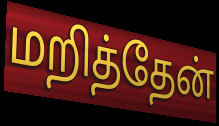
மறித்தேன்